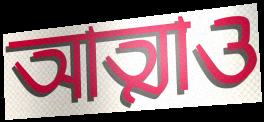
আত্মাও